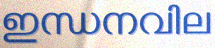
ഇന്ധനവില